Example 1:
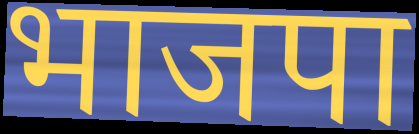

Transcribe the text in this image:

भाजपा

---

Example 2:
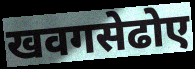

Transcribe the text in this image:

खवगसेढोए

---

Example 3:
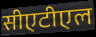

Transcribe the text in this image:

सीएटीएल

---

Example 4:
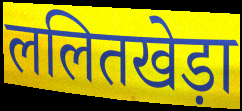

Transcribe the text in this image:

ललितखेड़ा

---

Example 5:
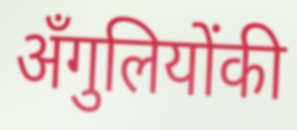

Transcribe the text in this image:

अँगुलियोंकी